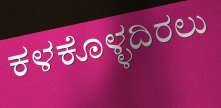
ಕಳಕೊಳ್ಳದಿರಲು